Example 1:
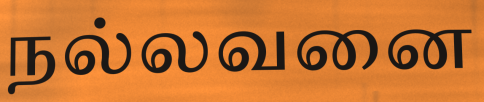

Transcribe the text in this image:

நல்லவனை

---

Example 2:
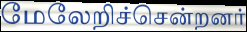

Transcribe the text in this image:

மேலேறிச்சென்றனர்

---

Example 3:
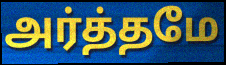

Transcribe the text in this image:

அர்த்தமே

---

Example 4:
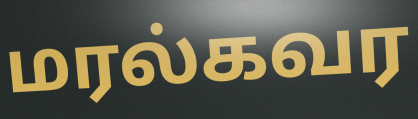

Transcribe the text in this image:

மரல்கவர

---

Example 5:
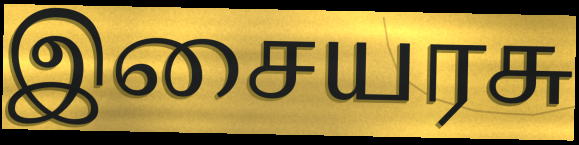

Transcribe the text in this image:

இசையரசு